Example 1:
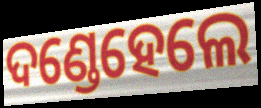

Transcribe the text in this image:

ଦଣ୍ଡେହେଲେ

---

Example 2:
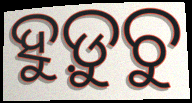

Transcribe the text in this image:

ହୁଡ଼ୁଚୁ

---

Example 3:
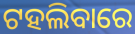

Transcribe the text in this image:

ଟହଲିବାରେ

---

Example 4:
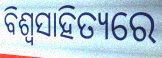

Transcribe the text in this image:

ବିଶ୍ବସାହିତ୍ୟରେ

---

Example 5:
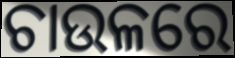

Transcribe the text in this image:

ଚାଉଳରେ